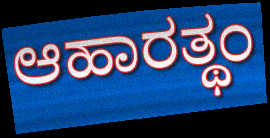
ಆಹಾರತ್ಥಂ